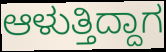
ಆಳುತ್ತಿದ್ದಾಗ